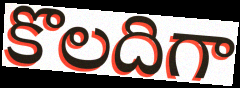
కొలదిగా